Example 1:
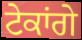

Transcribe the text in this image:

ਟੇਕਾਂਗੇ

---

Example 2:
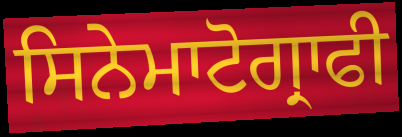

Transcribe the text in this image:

ਸਿਨੇਮਾਟੋਗ੍ਰਾਫੀ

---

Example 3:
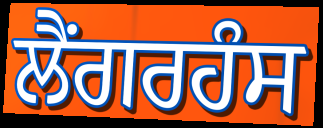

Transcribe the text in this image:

ਲੈਂਗਰਹੰਸ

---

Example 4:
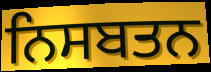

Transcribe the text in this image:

ਨਿਸਬਤਨ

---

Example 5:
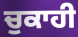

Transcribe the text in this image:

ਚੁਕਾਹੀ